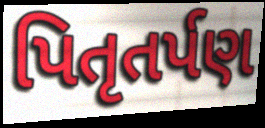
પિતૃતર્પણ